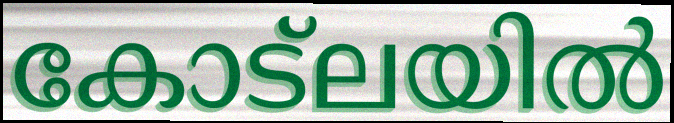
കോട്ലയിൽ